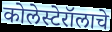
कोलेस्टेरॉलाचे